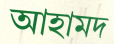
আহামদ